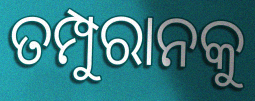
ତମ୍ପୁରାନକୁ